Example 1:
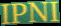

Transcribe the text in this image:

IPNI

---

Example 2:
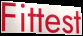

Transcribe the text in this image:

Fittest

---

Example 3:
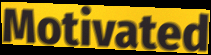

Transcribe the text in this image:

Motivated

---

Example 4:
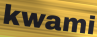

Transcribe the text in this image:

kwami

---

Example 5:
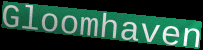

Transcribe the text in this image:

Gloomhaven